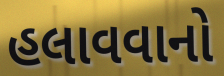
હલાવવાનો